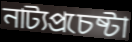
নাট্যপ্রচেষ্টা